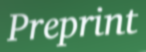
Preprint